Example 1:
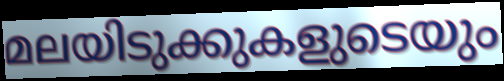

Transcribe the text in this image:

മലയിടുക്കുകളുടെയും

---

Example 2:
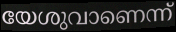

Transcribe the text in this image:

യേശുവാണെന്ന്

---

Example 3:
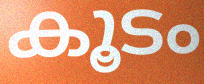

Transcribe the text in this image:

കൂടം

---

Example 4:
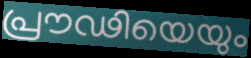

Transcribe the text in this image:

പ്രൗഢിയെയും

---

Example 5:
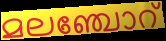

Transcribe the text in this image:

മലഞ്ചോറ്